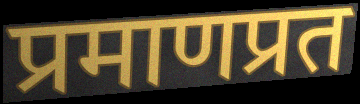
प्रमाणप्रत